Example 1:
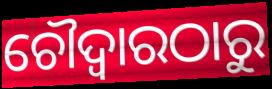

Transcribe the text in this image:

ଚୌଦ୍ୱାରଠାରୁ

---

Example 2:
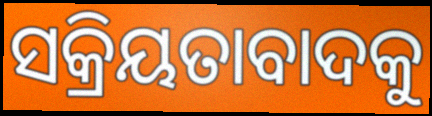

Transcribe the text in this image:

ସକ୍ରିୟତାବାଦକୁ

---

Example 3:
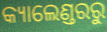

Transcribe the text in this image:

କ୍ୟାଲେଣ୍ଡରରୁ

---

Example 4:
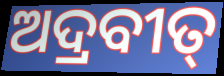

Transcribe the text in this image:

ଅଦ୍ରବୀତ୍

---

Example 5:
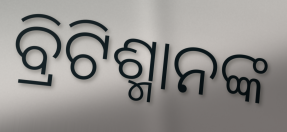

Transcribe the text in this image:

ବ୍ରିଟିଶ୍ମାନଙ୍କ